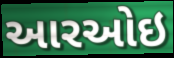
આરઓઇ